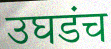
उघडंच